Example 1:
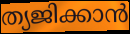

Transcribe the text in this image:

ത്യജിക്കാൻ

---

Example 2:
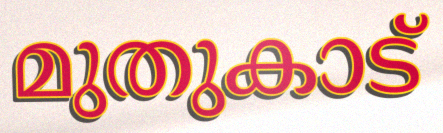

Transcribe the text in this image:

മുതുകാട്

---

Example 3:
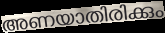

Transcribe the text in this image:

അണയാതിരിക്കും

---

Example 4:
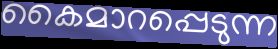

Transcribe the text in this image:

കൈമാറപ്പെടുന്ന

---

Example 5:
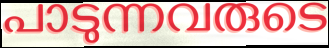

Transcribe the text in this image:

പാടുന്നവരുടെ